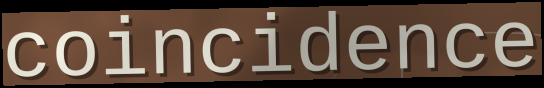
coincidence